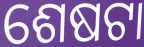
ଶେଷଟା